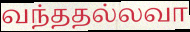
வந்ததல்லவா